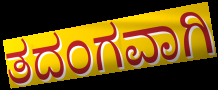
ತದಂಗವಾಗಿ